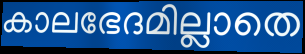
കാലഭേദമില്ലാതെ